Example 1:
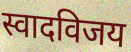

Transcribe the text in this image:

स्वादविजय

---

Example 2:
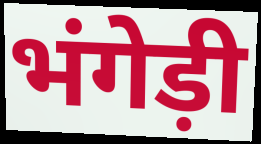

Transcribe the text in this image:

भंगेड़ी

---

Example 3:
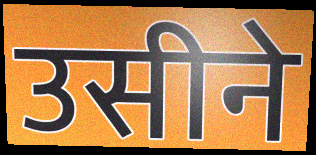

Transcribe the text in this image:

उसीने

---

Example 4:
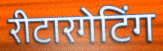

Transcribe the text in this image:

रीटारगेटिंग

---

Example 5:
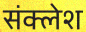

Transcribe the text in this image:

संक्लेश